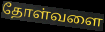
தோள்வளை